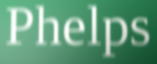
Phelps